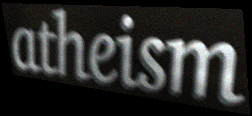
atheism